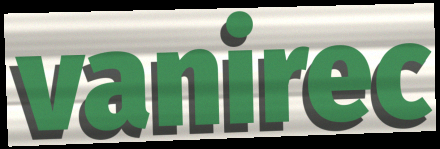
vanirec